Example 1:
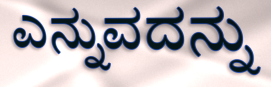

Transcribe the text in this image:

ಎನ್ನುವದನ್ನು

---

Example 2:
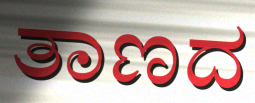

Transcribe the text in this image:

ತಾಣದ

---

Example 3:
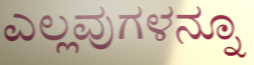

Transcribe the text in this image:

ಎಲ್ಲವುಗಳನ್ನೂ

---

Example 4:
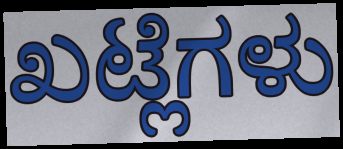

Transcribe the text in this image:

ಖಟ್ಲೆಗಳು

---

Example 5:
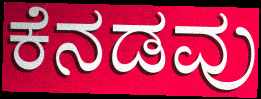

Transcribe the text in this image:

ಕೆನಡವು